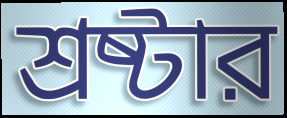
শ্রষ্টার